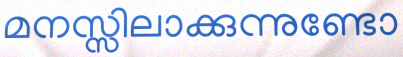
മനസ്സിലാക്കുന്നുണ്ടോ